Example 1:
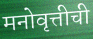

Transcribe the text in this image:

मनोवृत्तीची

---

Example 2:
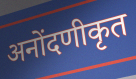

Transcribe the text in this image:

अनोंदणीकृत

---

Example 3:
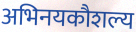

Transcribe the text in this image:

अभिनयकौशल्य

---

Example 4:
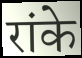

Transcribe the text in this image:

रांके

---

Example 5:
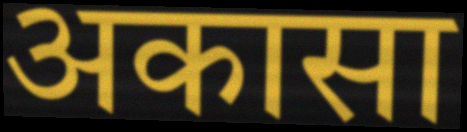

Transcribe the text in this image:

अकासा